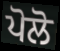
ਪੋਲੋ